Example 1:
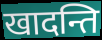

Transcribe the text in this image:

खादन्ति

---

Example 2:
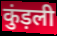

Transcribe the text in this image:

कुंड़ली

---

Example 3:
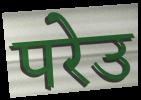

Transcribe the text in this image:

परेउ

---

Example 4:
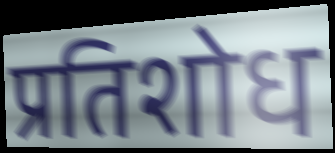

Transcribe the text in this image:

प्रतिशोध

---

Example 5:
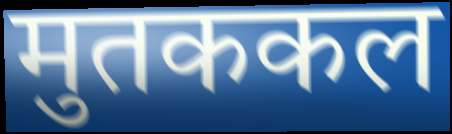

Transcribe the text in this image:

मुतककल